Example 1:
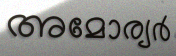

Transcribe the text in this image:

അമോര്യർ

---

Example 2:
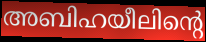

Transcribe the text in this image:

അബിഹയീലിന്റെ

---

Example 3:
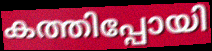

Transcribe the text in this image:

കത്തിപ്പോയി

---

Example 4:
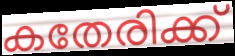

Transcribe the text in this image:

കതേരിക്ക്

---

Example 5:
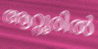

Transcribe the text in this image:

ആറ്റൂരിൽ